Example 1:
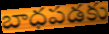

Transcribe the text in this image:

బాధపడకు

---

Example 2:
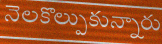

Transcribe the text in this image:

నెలకొల్పుకున్నారు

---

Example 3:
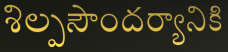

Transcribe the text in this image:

శిల్పసౌందర్యానికి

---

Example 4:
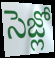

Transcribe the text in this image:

సెజ్లో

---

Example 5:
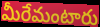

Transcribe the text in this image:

మీరేమంటారు